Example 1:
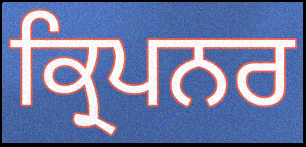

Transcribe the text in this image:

ਕ੍ਰਿਪਨਰ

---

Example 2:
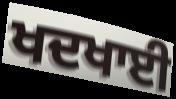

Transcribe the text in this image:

ਖਦਖਾਈ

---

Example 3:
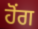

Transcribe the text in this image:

ਹੋਂਗ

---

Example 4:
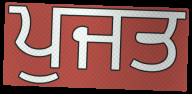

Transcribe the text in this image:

ਪੁਜਤ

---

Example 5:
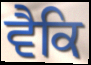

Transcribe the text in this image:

ਵੈਕਿ